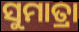
ସୁମାତ୍ରା